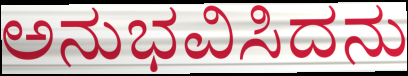
ಅನುಭವಿಸಿದನು